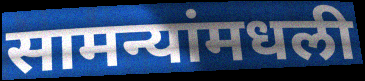
सामन्यांमधली